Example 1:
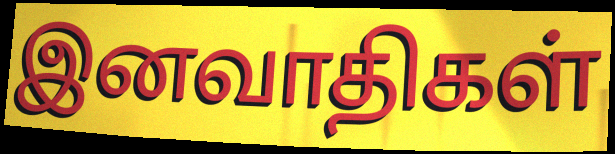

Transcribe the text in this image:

இனவாதிகள்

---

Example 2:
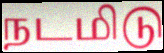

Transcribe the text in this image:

நடமிடு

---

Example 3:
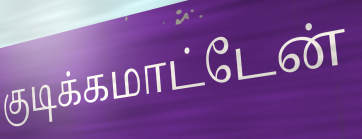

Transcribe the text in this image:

குடிக்கமாட்டேன்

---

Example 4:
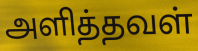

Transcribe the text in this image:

அளித்தவள்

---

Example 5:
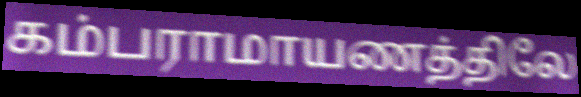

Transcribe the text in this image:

கம்பராமாயணத்திலே